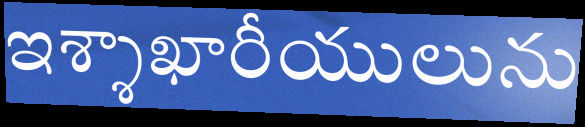
ఇశ్శాఖారీయులును